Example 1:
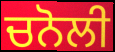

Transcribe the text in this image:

ਚਨੋਲੀ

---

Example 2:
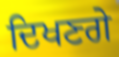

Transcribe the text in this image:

ਦਿਖਣਗੇ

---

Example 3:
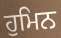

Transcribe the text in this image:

ਹੁਮਿਨ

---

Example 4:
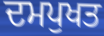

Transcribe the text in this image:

ਦਮਪੁਖਤ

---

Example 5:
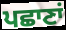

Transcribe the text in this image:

ਪਛਾਣਾਂ